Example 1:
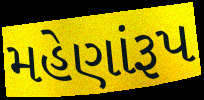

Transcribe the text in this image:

મહેણાંરૂપ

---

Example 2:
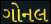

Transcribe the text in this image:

ગોનલ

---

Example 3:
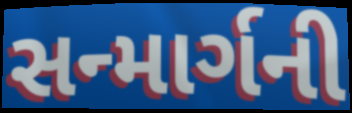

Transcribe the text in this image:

સન્માર્ગની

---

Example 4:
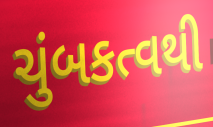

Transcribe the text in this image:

ચુંબકત્વથી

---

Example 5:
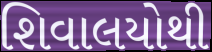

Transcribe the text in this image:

શિવાલયોથી